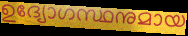
ഉദ്യോഗസ്ഥനുമായ